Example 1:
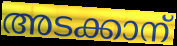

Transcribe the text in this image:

അടക്കാന്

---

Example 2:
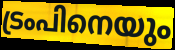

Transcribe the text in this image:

ട്രംപിനെയും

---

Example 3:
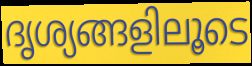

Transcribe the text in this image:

ദൃശ്യങ്ങളിലൂടെ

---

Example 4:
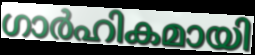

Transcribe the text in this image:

ഗാർഹികമായി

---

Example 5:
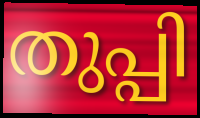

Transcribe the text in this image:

തുപ്പി